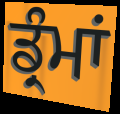
ਡ੍ਰੰਮਾਂ